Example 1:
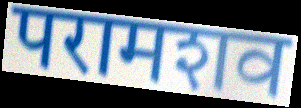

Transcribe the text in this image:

परामशव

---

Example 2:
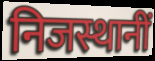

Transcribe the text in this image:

निजस्थानीं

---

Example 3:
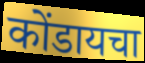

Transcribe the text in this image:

कोंडायचा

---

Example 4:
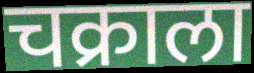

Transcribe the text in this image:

चक्राला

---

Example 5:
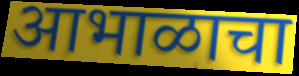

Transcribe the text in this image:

आभाळाचा